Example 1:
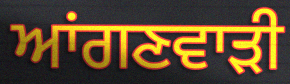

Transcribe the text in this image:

ਆਂਗਣਵਾੜੀ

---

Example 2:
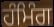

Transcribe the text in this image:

ਹੰਮਿੰਗ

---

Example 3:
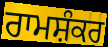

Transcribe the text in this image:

ਰਾਮਸ਼ੰਕਰ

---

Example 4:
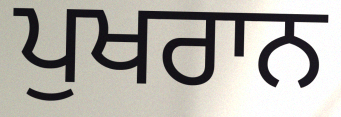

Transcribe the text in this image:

ਪੁਖਰਾਨ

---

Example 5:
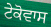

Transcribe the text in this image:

ਟੇਕੋਵਾਸ